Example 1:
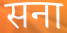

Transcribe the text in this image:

सना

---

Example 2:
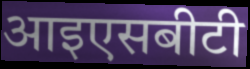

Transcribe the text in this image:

आइएसबीटी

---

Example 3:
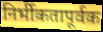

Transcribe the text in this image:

निर्भीकतापूर्वक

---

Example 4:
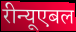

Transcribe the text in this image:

रीन्यूएबल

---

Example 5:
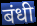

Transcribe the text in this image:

बंधी